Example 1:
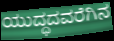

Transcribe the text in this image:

ಯುದ್ಧದವರೆಗಿನ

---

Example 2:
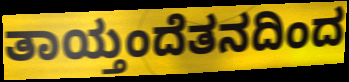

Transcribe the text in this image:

ತಾಯ್ತಂದೆತನದಿಂದ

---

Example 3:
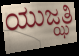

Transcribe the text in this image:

ಯುಜ್ಝತಿ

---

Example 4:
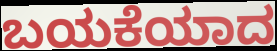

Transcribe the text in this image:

ಬಯಕೆಯಾದ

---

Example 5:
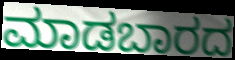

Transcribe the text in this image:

ಮಾಡಬಾರದ